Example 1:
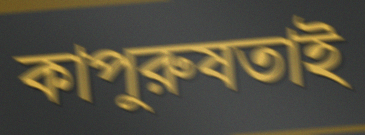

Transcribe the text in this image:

কাপুরুষতাই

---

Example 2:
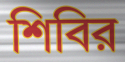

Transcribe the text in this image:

শিবির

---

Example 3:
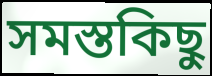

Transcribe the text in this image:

সমস্তকিছু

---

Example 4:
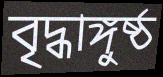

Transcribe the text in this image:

বৃদ্ধাঙ্গুষ্ঠ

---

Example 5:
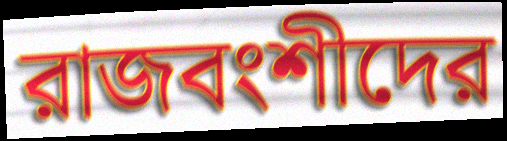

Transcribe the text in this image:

রাজবংশীদের